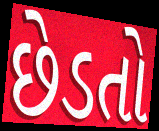
છેડતો